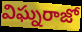
విఘ్నరాజో